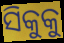
ସିକୁକୁ